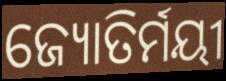
ଜ୍ୟୋତିର୍ମୟୀ